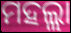
ମହଲ୍ଲା